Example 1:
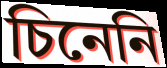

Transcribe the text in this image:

চিনেনি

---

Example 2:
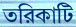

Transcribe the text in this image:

তরিকাটি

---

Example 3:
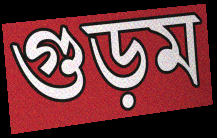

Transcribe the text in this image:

গুড়ম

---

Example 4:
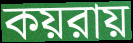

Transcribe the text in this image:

কয়রায়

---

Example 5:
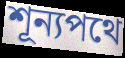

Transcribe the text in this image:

শূন্যপথে